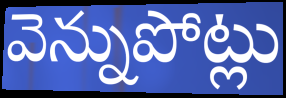
వెన్నుపోట్లు